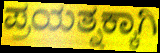
ಪ್ರಯತ್ನಕ್ಕಾಗಿ